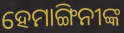
ହେମାଙ୍ଗିନୀଙ୍କ